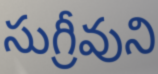
సుగ్రీవుని